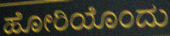
ಹೋರಿಯೊಂದು